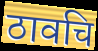
ठावचि